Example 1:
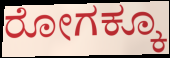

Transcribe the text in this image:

ರೋಗಕ್ಕೂ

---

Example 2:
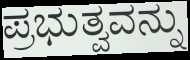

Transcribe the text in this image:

ಪ್ರಭುತ್ವವನ್ನು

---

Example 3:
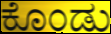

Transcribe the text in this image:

ಕೊಂಡು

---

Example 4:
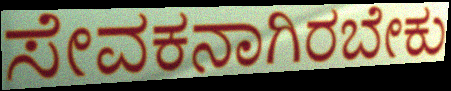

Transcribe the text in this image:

ಸೇವಕನಾಗಿರಬೇಕು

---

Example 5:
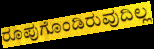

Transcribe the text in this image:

ರೂಪುಗೊಂಡಿರುವುದಿಲ್ಲ